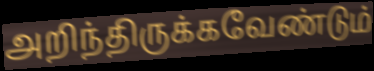
அறிந்திருக்கவேண்டும்